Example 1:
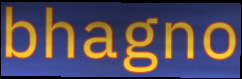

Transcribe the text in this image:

bhagno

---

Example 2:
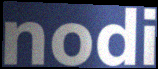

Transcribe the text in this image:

nodi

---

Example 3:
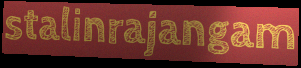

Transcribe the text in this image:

stalinrajangam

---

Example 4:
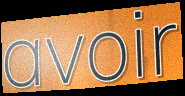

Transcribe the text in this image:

avoir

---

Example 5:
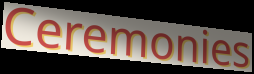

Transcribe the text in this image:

Ceremonies